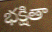
భక్షితా